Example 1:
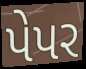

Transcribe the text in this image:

પેપર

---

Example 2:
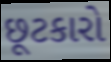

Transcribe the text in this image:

છૂટકારો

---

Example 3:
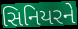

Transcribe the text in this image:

સિનિયરને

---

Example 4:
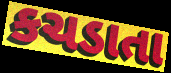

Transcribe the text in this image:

કચડાતા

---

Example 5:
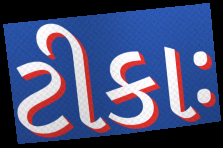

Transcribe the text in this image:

ટીકાઃ